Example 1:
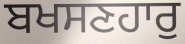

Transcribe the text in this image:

ਬਖਸਣਹਾਰੁ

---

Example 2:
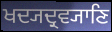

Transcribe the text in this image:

ਖਦ੍ਯਦ੍ਰਵ੍ਯਾਣਿ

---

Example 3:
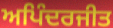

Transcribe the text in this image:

ਅਪਿੰਦਰਜੀਤ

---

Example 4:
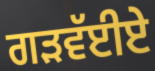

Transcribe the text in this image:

ਗੜਵੱਈਏ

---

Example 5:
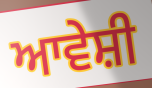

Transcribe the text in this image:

ਆਵੇਸ਼ੀ